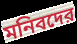
মনিবদের